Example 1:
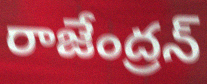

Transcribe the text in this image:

రాజేంద్రన్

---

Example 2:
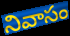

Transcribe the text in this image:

నివాసం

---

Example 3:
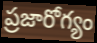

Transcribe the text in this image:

ప్రజారోగ్యం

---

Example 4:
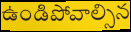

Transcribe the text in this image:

ఉండిపోవాల్సిన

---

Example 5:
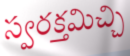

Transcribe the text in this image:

స్వరక్తమిచ్చి